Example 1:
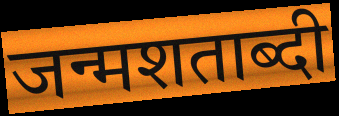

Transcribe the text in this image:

जन्मशताब्दी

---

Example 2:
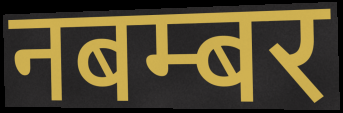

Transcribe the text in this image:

नबम्बर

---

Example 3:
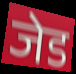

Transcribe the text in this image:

जेड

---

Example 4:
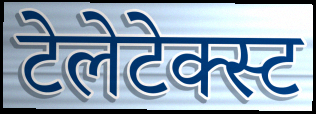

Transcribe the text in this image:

टेलेटेक्स्ट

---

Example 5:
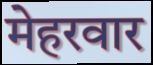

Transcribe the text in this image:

मेहरवार